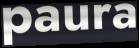
paura